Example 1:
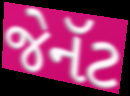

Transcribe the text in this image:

જેનૅટ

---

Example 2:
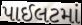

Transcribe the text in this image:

પાઈલટમાં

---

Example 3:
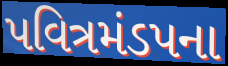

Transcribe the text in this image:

પવિત્રમંડપના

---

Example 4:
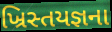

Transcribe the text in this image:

ખ્રિસ્તયજ્ઞના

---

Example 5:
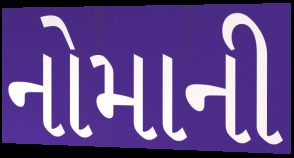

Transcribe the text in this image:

નોમાની